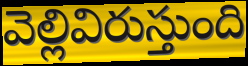
వెల్లివిరుస్తుంది